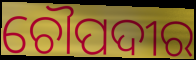
ଚୌପଦୀର